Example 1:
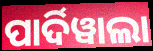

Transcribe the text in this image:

ପାର୍ଦିୱାଲା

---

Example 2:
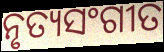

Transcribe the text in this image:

ନୃତ୍ୟସଂଗୀତ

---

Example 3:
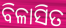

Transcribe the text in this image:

ବିଳାସିତ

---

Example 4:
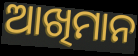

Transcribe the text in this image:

ଆଖିମାନ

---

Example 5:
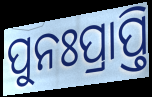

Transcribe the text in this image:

ପୁନଃପ୍ରାପ୍ତି